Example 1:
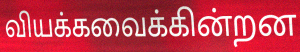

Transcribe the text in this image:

வியக்கவைக்கின்றன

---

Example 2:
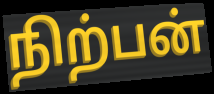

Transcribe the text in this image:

நிற்பன்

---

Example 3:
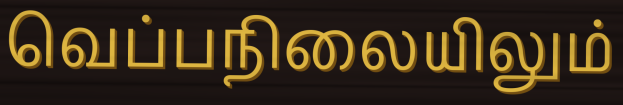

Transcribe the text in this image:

வெப்பநிலையிலும்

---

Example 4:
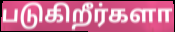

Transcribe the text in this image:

படுகிறீர்களா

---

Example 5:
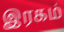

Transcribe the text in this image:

இரகம்